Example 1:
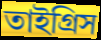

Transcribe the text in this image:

তাইগ্রিস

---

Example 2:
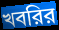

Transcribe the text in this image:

খবরির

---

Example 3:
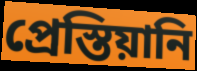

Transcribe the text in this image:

প্রেস্তিয়ানি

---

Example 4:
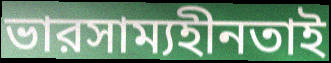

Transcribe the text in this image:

ভারসাম্যহীনতাই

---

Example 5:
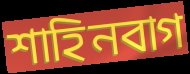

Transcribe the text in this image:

শাহিনবাগ